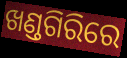
ଖଣ୍ଡଗିରିରେ